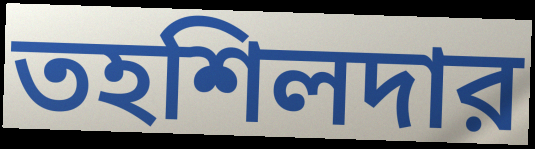
তহশিলদার